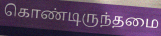
கொண்டிருந்தமை